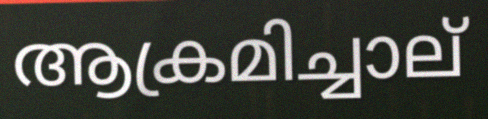
ആക്രമിച്ചാല്